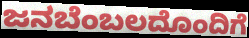
ಜನಬೆಂಬಲದೊಂದಿಗೆ